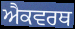
ਐਕਵਰਥ